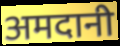
अमदानी